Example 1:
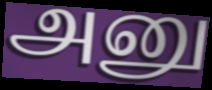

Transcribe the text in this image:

அனு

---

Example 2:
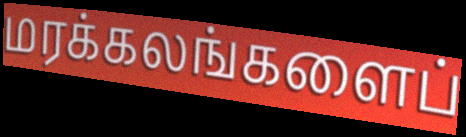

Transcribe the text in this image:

மரக்கலங்களைப்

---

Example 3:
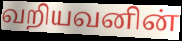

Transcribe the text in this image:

வறியவனின்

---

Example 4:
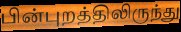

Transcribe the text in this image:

பின்புறத்திலிருந்து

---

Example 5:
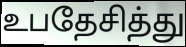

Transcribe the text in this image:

உபதேசித்து